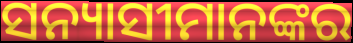
ସନ୍ୟାସୀମାନଙ୍କର